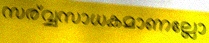
സര്വ്വസാധകമാണല്ലോ